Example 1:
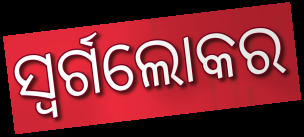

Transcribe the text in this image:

ସ୍ୱର୍ଗଲୋକର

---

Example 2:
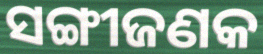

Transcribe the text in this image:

ସଙ୍ଗୀଜଣକ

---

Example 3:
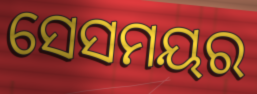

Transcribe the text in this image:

ସେସମୟର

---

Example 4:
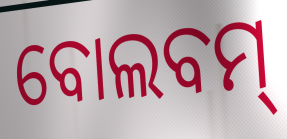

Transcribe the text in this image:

ବୋଲବମ୍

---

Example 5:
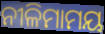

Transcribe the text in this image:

ନୀଳିମାମୟ